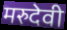
मरुदेवी